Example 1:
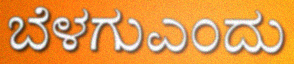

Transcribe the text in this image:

ಬೆಳಗುಎಂದು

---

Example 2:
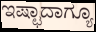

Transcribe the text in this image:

ಇಷ್ಟಾದಾಗ್ಯೂ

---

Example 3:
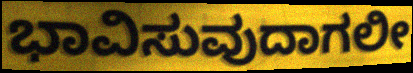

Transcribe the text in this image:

ಭಾವಿಸುವುದಾಗಲೀ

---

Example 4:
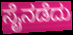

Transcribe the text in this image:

ಸೈನಡೆದು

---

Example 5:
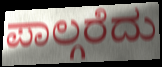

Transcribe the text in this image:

ಪಾಲ್ಗರೆದು